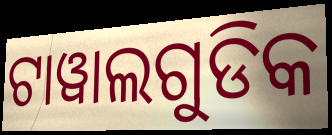
ଟାୱାଲଗୁଡିକ